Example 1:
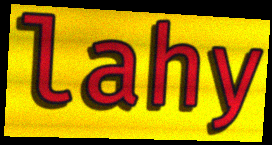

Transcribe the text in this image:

lahy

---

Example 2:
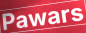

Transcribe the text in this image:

Pawars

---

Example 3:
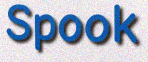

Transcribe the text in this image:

Spook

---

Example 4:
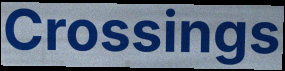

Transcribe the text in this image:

Crossings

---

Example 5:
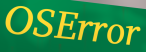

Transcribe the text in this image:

OSError